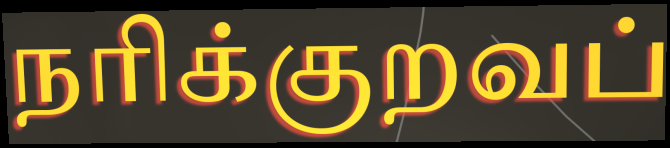
நரிக்குறவப்